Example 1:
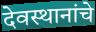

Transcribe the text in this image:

देवस्थानांचे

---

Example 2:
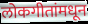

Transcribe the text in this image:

लोकगीतांमधून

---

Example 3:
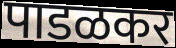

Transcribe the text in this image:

पाडळकर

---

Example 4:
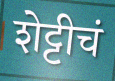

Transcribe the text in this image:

शेट्टीचं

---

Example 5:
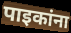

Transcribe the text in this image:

पाइकांना